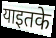
याइतके